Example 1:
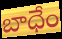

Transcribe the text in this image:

బాధేం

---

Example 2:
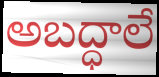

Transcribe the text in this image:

అబద్ధాలే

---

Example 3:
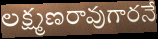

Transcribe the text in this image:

లక్ష్మణరావుగారనే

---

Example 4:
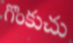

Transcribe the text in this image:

గొంకుచు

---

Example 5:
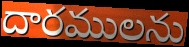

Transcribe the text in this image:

దారములను